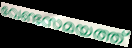
വേണ്ടസമയത്ത്